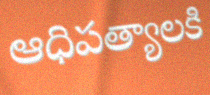
ఆధిపత్యాలకి